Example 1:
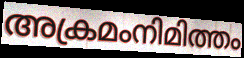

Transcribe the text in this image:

അക്രമംനിമിത്തം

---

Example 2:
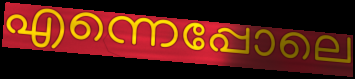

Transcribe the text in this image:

എന്നെപ്പോലെ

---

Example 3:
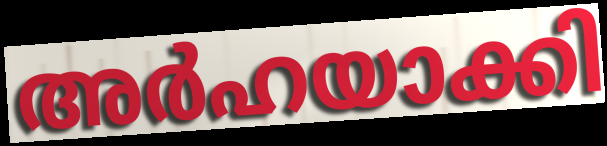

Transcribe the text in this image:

അർഹയാക്കി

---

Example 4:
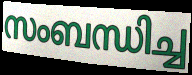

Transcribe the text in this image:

സംബന്ധിച്ച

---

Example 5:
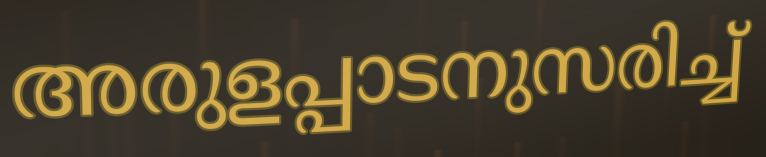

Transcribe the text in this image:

അരുളപ്പാടനുസരിച്ച്